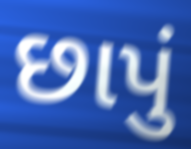
છાપું